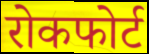
रोकफोर्ट